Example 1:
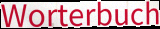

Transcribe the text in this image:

Worterbuch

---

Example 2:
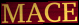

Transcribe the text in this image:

MACE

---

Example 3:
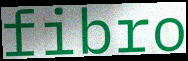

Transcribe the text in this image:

fibro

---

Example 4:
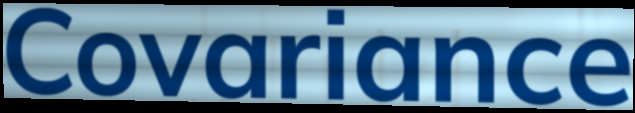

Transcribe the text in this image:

Covariance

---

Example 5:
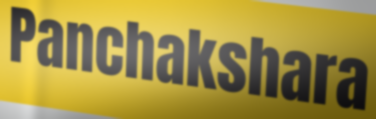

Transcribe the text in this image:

Panchakshara